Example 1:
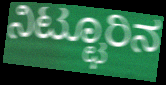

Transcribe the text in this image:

ನಿಟ್ಟೂರಿನ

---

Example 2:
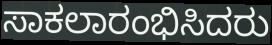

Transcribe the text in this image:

ಸಾಕಲಾರಂಭಿಸಿದರು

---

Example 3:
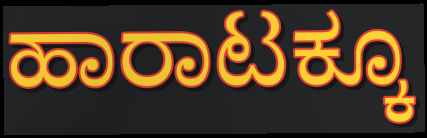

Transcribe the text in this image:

ಹಾರಾಟಕ್ಕೂ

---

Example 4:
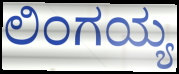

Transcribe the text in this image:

ಲಿಂಗಯ್ಯ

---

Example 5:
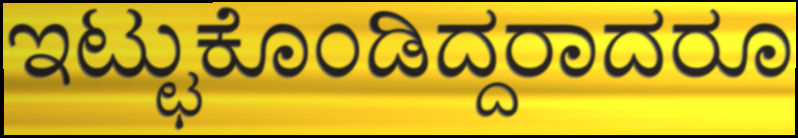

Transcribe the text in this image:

ಇಟ್ಟುಕೊಂಡಿದ್ದರಾದರೂ